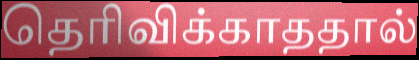
தெரிவிக்காததால்